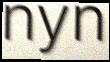
nyn